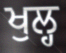
ਖੁਲ੍ਹ